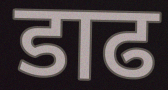
डाढ